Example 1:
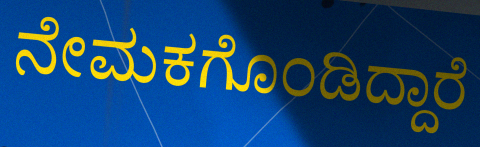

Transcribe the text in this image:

ನೇಮಕಗೊಂಡಿದ್ದಾರೆ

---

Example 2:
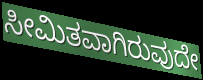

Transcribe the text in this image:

ಸೀಮಿತವಾಗಿರುವುದೇ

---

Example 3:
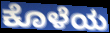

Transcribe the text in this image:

ಕೊಳೆಯ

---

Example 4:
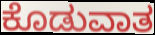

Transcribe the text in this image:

ಕೊಡುವಾತ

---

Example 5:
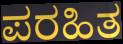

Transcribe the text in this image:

ಪರಹಿತ